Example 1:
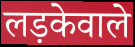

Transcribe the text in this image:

लड़केवाले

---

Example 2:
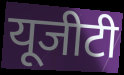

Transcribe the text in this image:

यूजीटी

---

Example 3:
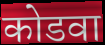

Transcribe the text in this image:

कोडवा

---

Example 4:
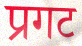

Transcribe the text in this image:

प्रगट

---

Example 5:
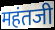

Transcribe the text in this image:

महंतजी